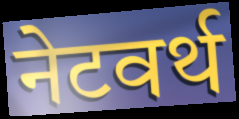
नेटवर्थ